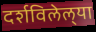
दर्शविलेल्या